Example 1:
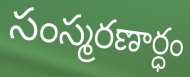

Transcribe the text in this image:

సంస్మరణార్ధం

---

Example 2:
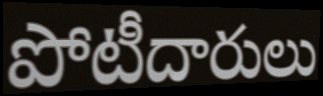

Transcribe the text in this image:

పోటీదారులు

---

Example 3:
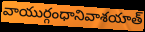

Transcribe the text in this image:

వాయుర్గంధానివాశయాత్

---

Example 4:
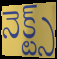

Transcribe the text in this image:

నెక్ట్స్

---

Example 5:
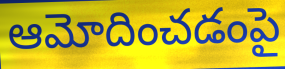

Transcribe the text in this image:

ఆమోదించడంపై